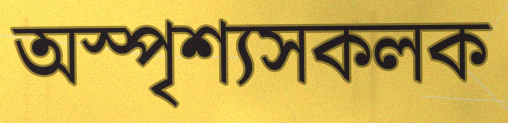
অস্পৃশ্যসকলক